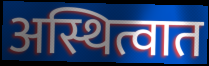
अस्थित्वात